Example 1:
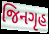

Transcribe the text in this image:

જિનગૃહ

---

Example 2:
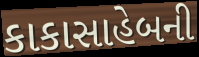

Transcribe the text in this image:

કાકાસાહેબની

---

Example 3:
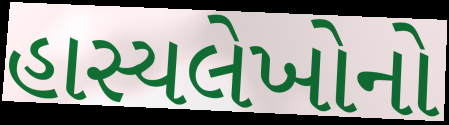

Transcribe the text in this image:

હાસ્યલેખોનો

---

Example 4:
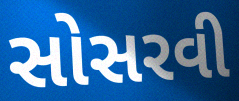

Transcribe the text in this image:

સોસરવી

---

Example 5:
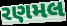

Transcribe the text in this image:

રણમલ